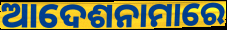
ଆଦେଶନାମାରେ